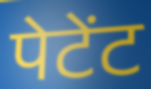
पेटेंट